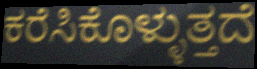
ಕರೆಸಿಕೊಳ್ಳುತ್ತದೆ